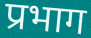
प्रभाग